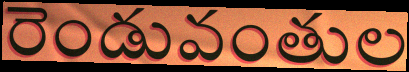
రెండువంతుల